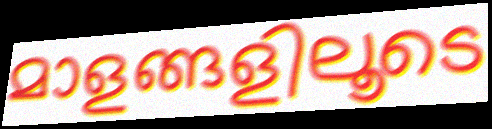
മാളങ്ങളിലൂടെ